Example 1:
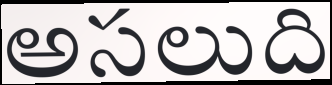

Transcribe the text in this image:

అసలుది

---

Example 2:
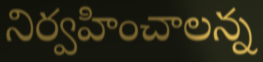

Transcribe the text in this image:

నిర్వహించాలన్న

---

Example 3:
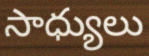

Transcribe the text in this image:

సాధ్యులు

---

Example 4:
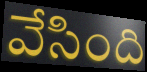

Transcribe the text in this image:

వేసింది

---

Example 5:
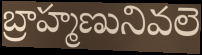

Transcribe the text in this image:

బ్రాహ్మణునివలె